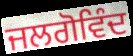
ਜਲਗੋਵਿੰਦ